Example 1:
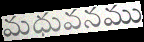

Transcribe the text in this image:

మధువనము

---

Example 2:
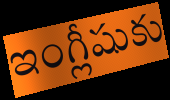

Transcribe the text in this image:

ఇంగ్లీషుకు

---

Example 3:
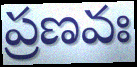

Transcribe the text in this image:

ప్రణవః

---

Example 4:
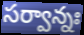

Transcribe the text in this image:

సర్వాన్నః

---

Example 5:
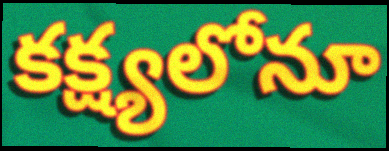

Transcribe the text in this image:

కక్ష్యలోనూ